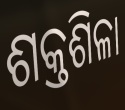
ଶକ୍ତଶିଳା